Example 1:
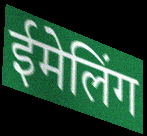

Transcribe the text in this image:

ईमेलिंग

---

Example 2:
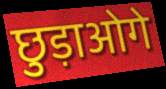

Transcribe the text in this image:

छुड़ाओगे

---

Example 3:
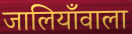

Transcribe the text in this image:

जालियाँवाला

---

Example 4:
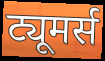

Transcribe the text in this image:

ट्यूमर्स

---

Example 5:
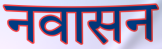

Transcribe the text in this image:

नवासन